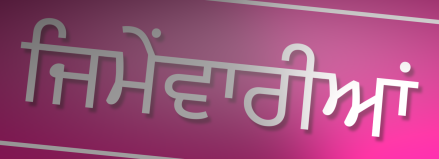
ਜਿਮੇਂਵਾਰੀਆਂ